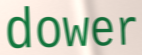
dower